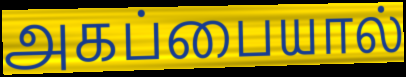
அகப்பையால்